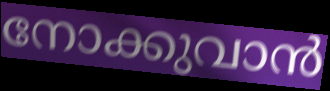
നോക്കുവാൻ